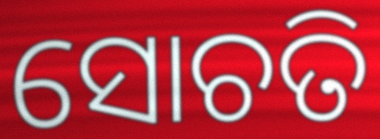
ସୋଚତି